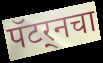
पॅटर्नचा